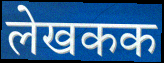
लेखकक